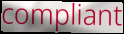
compliant